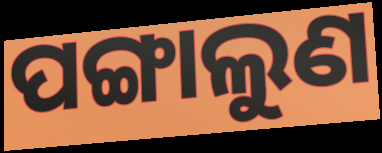
ପଙ୍ଗାଲୁଣ